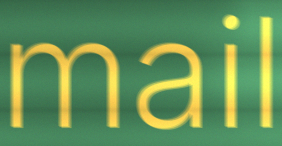
mail